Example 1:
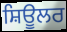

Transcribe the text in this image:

ਸ਼ਿਊਲਰ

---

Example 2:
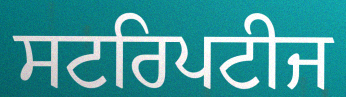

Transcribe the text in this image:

ਸਟਰਿਪਟੀਜ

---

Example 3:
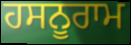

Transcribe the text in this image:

ਹਸਨੂਰਾਮ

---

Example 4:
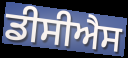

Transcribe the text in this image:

ਡੀਸੀਐਸ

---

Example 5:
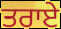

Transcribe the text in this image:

ਤਰਾਏ